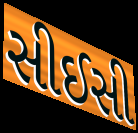
સીઈસી